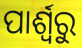
ପାର୍ଶ୍ଵରୁ